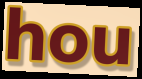
hou